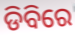
ଡିବିରେ